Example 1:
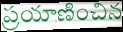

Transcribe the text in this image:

ప్రయాణించిన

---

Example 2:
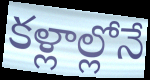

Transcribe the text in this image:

కళ్లాల్లోనే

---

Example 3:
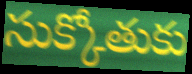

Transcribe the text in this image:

సుక్కోతుకు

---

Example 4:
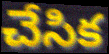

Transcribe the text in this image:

చేసిక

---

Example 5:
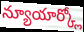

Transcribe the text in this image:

న్యూయార్క్లో